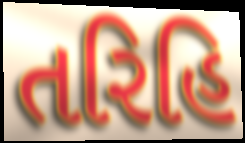
તરિહિ